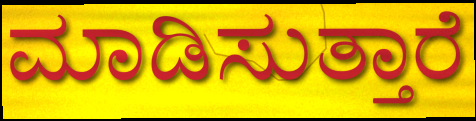
ಮಾಡಿಸುತ್ತಾರೆ